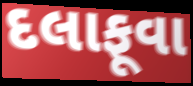
દલાફૂવા